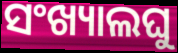
ସଂଖ୍ୟାଲଘୁ